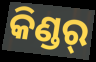
କିଣ୍ଡର୍